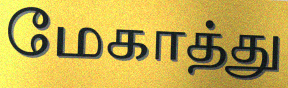
மேகாத்து